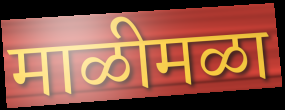
माळीमळा